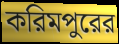
করিমপুরের